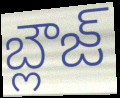
బ్లౌజ్